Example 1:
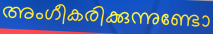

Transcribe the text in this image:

അംഗീകരിക്കുന്നുണ്ടോ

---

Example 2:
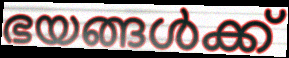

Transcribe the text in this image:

ഭയങ്ങൾക്ക്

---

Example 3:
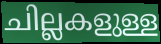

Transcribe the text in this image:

ചില്ലകളുള്ള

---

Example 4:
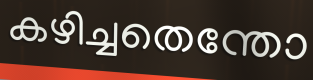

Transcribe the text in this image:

കഴിച്ചതെന്തോ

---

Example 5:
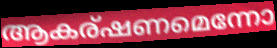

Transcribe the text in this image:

ആകര്ഷണമെന്നോ